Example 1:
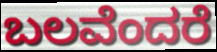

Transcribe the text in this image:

ಬಲವೆಂದರೆ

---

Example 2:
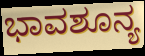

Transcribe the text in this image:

ಭಾವಶೂನ್ಯ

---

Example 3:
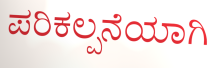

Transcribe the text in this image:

ಪರಿಕಲ್ಪನೆಯಾಗಿ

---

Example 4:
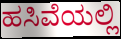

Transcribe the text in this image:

ಹಸಿವೆಯಲ್ಲಿ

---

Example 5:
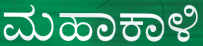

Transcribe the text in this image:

ಮಹಾಕಾಳಿ